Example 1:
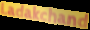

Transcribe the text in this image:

Ladakchand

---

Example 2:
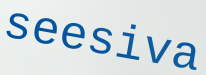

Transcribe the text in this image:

seesiva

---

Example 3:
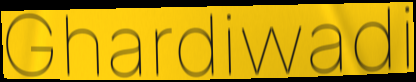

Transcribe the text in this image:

Ghardiwadi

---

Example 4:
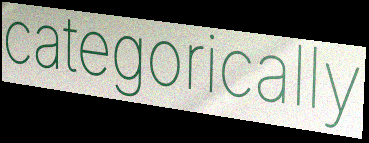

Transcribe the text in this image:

categorically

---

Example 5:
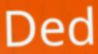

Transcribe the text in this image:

Ded